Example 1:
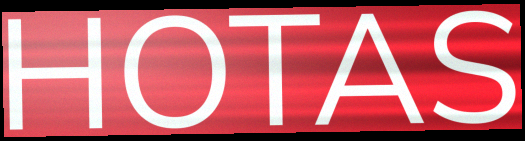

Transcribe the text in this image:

HOTAS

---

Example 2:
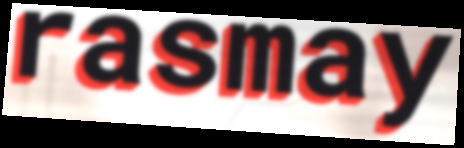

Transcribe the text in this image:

rasmay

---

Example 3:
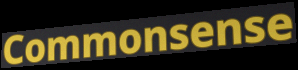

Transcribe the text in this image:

Commonsense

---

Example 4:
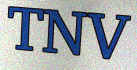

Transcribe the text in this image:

TNV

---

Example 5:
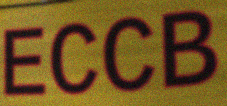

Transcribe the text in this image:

ECCB